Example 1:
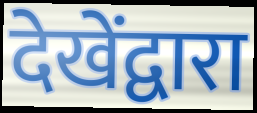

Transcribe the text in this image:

देखेंद्वारा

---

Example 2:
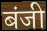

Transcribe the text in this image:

बंजी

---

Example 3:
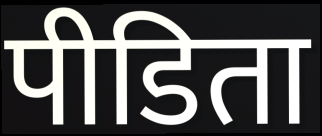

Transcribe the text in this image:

पीडिता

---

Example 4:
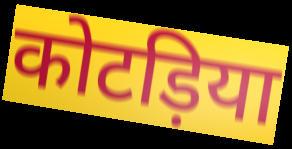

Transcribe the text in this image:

कोटड़िया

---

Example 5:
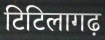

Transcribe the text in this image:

टिटिलागढ़